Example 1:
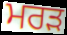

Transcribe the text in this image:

ਮਰੜ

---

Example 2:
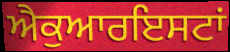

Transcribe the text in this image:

ਐਕੁਆਰਇਸਟਾਂ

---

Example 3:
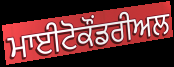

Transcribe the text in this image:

ਮਾਈਟੋਕੌਂਡਰੀਅਲ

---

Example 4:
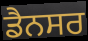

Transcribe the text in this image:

ਡੈਨਸਰ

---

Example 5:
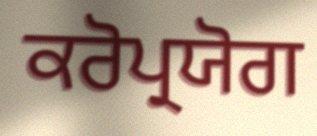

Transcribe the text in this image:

ਕਰੋਪ੍ਰਯੋਗ